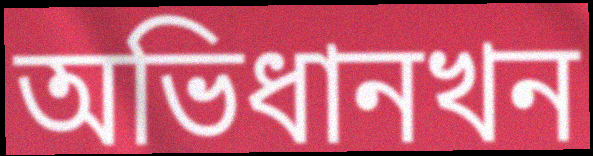
অভিধানখন